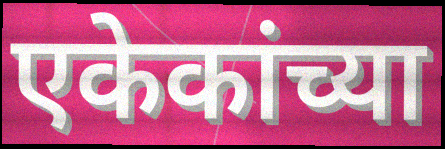
एकेकांच्या